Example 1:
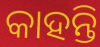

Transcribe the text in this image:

କାହନ୍ତି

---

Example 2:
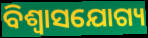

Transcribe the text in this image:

ବିଶ୍ବାସଯୋଗ୍ୟ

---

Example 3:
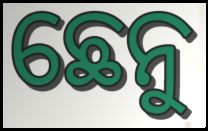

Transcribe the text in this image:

ଛେନୁ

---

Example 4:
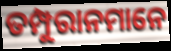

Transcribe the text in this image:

ତମ୍ପୁରାନମାନେ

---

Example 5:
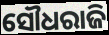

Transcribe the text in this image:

ସୌଧରାଜି